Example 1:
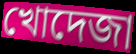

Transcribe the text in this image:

খোদেজা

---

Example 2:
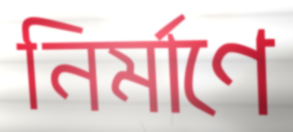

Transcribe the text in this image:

নির্মাণে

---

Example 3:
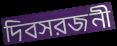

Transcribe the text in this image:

দিবসরজনী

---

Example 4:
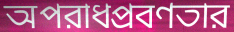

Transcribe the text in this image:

অপরাধপ্রবণতার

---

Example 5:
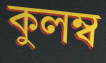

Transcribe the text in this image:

কুলম্ব